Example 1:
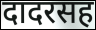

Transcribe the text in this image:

दादरसह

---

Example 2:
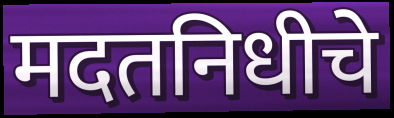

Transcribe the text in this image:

मदतनिधीचे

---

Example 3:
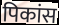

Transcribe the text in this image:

पिकांस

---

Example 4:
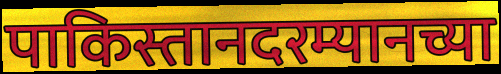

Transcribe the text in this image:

पाकिस्तानदरम्यानच्या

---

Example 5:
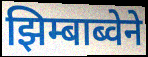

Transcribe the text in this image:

झिम्बाब्वेने